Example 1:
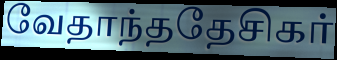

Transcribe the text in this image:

வேதாந்ததேசிகர்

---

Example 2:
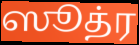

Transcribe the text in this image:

ஸூத்ர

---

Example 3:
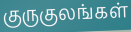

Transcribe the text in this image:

குருகுலங்கள்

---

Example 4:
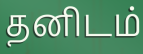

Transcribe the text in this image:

தனிடம்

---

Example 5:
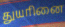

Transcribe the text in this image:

துயரினை